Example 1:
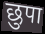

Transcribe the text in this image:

छुपा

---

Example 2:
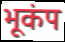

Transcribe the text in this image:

भूकंप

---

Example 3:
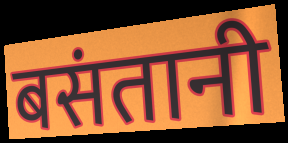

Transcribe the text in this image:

बसंतानी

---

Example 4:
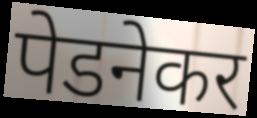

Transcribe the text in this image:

पेडनेकर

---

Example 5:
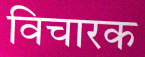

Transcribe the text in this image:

विचारक